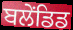
ਬਲੇਂਡਿਡ